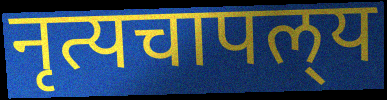
नृत्यचापल्य